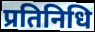
प्रतिनिधि